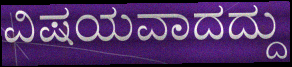
ವಿಷಯವಾದದ್ದು